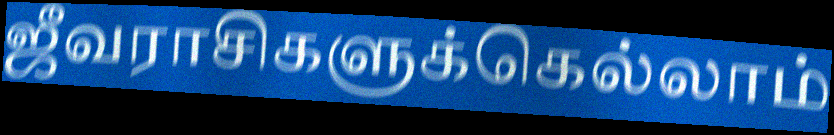
ஜீவராசிகளுக்கெல்லாம்